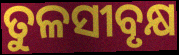
ତୁଳସୀବୃକ୍ଷ